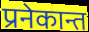
प्रनेकान्त